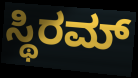
ಸ್ಥಿರಮ್